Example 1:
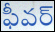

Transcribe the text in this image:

ఫీవర్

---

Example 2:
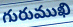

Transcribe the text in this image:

గురుముఖి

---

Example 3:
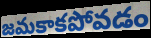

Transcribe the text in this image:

జమకాకపోవడం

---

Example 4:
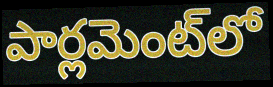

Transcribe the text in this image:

పార్లమెంట్‌లో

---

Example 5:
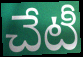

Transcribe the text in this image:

చేటీ